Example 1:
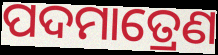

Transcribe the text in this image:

ପଦମାତ୍ରେଣ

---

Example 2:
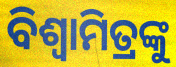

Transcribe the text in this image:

ବିଶ୍ଵାମିତ୍ରଙ୍କୁ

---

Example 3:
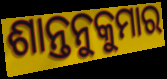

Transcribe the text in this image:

ଶାନ୍ତନୁକୁମାର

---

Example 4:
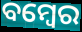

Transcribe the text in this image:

ବମ୍ବେର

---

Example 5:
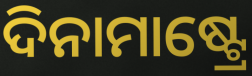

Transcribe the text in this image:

ଦିନାମାଷ୍ଟ୍ରେ